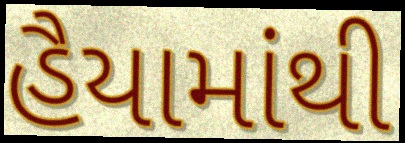
હૈયામાંથી